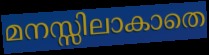
മനസ്സിലാകാതെ